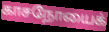
காசநோயைக்